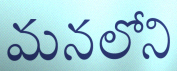
మనలోని